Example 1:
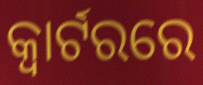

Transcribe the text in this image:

କ୍ବାର୍ଟରରେ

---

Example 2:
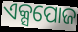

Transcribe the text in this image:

ଏକ୍ସପୋଜ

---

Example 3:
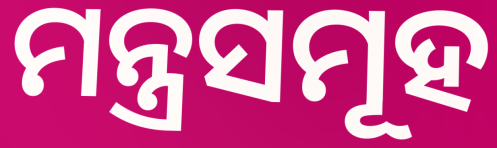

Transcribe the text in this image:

ମନ୍ତ୍ରସମୂହ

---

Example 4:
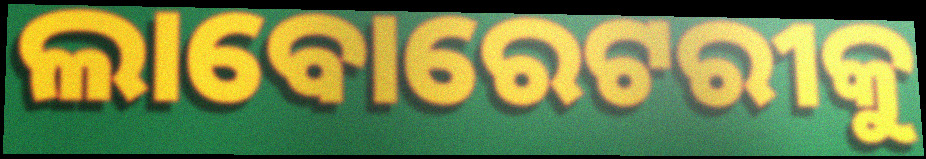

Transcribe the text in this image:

ଲାବୋରେଟରୀକୁ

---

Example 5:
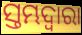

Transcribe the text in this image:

ସ୍ତମ୍ଭଦ୍ୱାରା